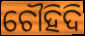
ଚୌହିଦି